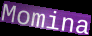
Momina